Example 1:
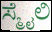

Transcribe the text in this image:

ಸ್ಮೈಲಿ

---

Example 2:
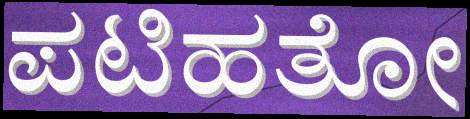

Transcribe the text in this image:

ಪಟಿಹತೋ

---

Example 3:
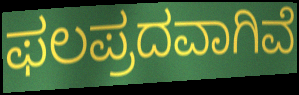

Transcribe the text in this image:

ಫಲಪ್ರದವಾಗಿವೆ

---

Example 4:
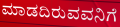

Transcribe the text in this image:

ಮಾಡದಿರುವವನಿಗೆ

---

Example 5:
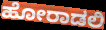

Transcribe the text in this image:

ಹೋರಾಡಲಿ